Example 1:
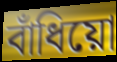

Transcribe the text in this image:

বাঁধিয়ো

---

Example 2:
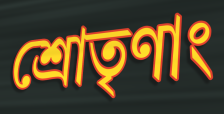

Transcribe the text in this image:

শ্রোতৃণাং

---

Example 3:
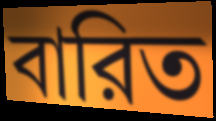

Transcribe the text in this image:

বারিত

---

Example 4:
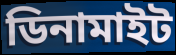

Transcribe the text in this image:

ডিনামাইট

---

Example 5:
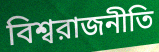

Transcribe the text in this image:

বিশ্বরাজনীতি